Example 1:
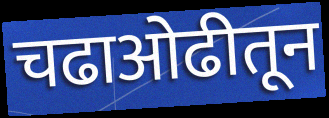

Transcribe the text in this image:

चढाओढीतून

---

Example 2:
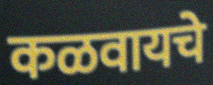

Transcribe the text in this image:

कळवायचे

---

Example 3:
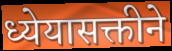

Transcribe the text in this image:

ध्येयासक्तीने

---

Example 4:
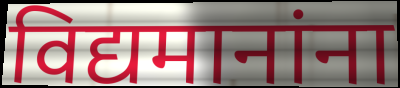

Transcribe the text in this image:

विद्यमानांना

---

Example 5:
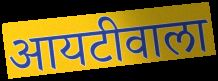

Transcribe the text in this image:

आयटीवाला